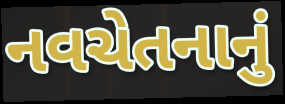
નવચેતનાનું